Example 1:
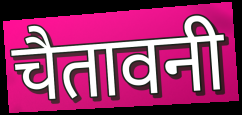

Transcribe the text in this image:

चैतावनी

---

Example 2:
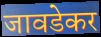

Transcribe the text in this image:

जावडेकर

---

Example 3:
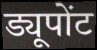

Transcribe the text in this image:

ड्यूपोंट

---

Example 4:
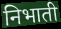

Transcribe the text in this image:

निभाती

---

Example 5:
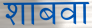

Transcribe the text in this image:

शाबवा